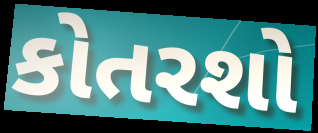
કોતરશો